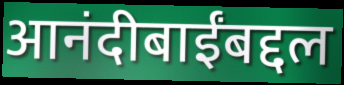
आनंदीबाईंबद्दल